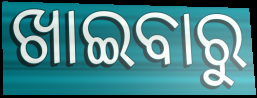
ଖାଇବାରୁ